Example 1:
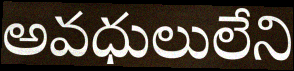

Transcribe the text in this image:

అవధులులేని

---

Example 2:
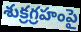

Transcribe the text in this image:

శుక్రగ్రహంపై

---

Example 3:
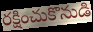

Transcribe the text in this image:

రక్షించుకొనుడి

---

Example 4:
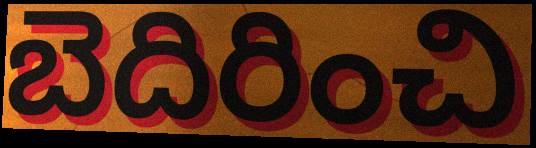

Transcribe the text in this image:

బెదిరించి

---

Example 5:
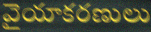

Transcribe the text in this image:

వైయాకరణులు